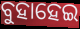
ବୁହାହେଇ